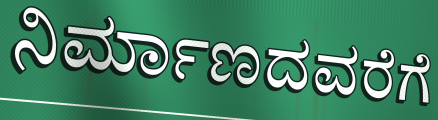
ನಿರ್ಮಾಣದವರೆಗೆ